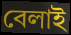
বেলাই